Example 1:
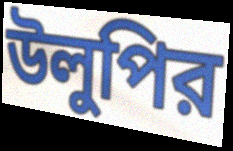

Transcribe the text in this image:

উলুপির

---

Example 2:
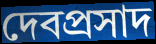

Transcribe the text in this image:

দেবপ্রসাদ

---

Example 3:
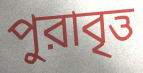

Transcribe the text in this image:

পুরাবৃত্ত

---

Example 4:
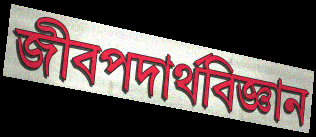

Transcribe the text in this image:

জীবপদার্থবিজ্ঞান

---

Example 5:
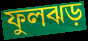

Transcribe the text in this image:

ফুলঝড়